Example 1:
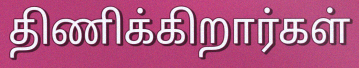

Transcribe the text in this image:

திணிக்கிறார்கள்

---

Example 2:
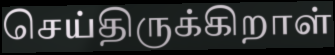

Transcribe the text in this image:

செய்திருக்கிறாள்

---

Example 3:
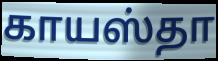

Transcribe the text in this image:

காயஸ்தா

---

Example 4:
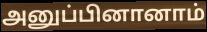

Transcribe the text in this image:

அனுப்பினானாம்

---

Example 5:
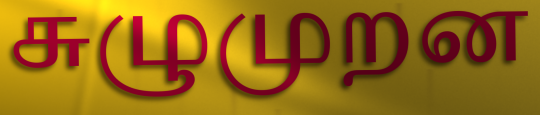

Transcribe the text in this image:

சுழுமுறன